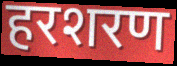
हरशरण